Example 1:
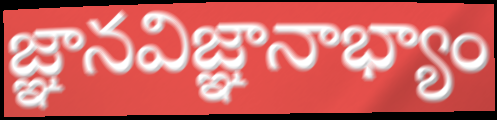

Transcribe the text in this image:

జ్ఞానవిజ్ఞానాభ్యాం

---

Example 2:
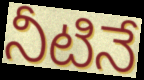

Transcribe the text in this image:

నీటినే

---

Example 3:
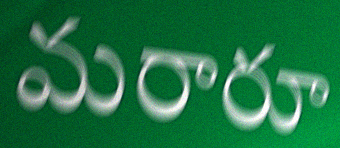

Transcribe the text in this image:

మరారూ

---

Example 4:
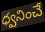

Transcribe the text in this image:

ధ్వనించే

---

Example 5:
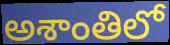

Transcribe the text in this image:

అశాంతిలో